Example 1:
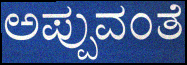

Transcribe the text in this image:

ಅಪ್ಪುವಂತೆ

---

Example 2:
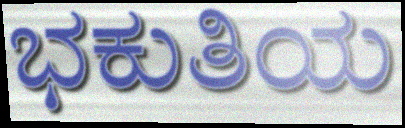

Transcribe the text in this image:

ಭಕುತಿಯ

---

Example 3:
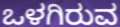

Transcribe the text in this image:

ಒಳಗಿರುವ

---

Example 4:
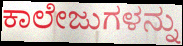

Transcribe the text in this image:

ಕಾಲೇಜುಗಳನ್ನು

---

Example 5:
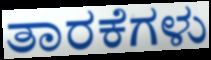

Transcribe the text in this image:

ತಾರಕೆಗಳು